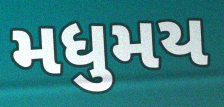
મધુમય